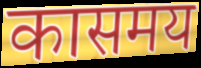
कासमय